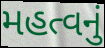
મહત્વનું